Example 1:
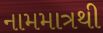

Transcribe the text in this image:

નામમાત્રથી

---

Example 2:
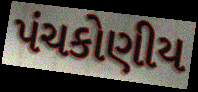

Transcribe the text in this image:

પંચકોણીય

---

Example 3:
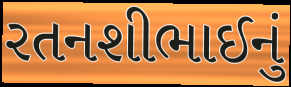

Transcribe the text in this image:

રતનશીભાઈનું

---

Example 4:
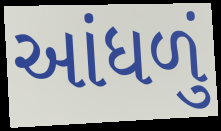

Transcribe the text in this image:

આંધળું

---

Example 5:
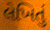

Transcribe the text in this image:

લેખિતું